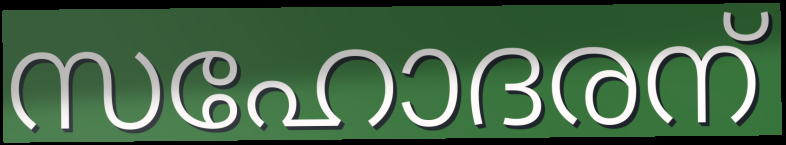
സഹോദരന്